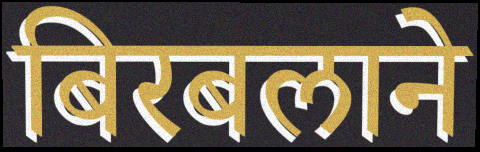
बिरबलाने